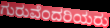
ಗುರುವೆಂದರಿಯರು